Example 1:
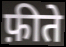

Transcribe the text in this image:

फ़ीते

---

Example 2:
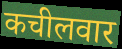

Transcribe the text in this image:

कचीलवार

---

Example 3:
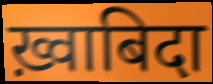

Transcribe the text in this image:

ख़्वाबिदा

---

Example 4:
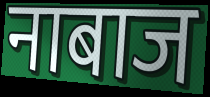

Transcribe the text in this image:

नाबाज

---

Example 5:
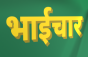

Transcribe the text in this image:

भाईचार